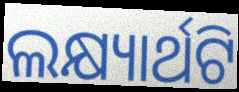
ଲକ୍ଷ୍ୟାର୍ଥଟି